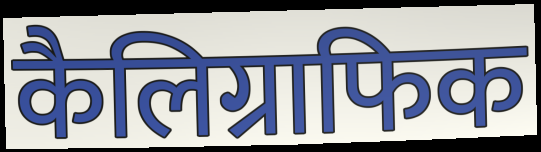
कैलिग्राफिक